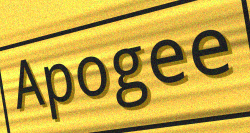
Apogee